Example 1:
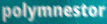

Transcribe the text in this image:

polymnestor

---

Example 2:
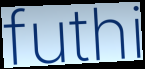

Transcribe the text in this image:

futhi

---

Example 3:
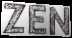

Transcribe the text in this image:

ZEN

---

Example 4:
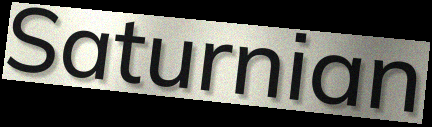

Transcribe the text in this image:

Saturnian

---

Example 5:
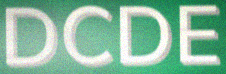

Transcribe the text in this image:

DCDE